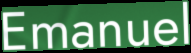
Emanuel